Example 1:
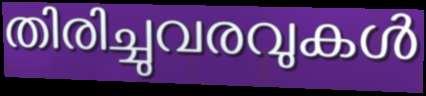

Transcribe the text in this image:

തിരിച്ചുവരവുകൾ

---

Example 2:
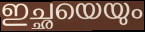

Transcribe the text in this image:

ഇച്ഛയെയും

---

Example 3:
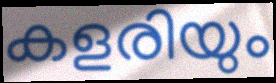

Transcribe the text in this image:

കളരിയും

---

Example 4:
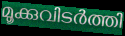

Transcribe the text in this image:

മൂക്കുവിടർത്തി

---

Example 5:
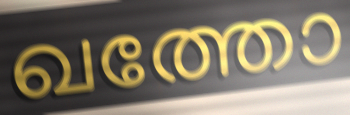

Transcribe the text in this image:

ഖത്തോ